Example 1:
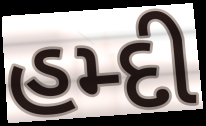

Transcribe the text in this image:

હમ્દી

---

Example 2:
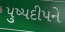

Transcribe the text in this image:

પુષ્પદીપને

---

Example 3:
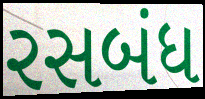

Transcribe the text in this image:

રસબંધ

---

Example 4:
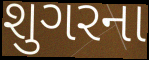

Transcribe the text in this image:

શુગરના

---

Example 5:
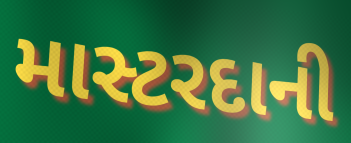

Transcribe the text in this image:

માસ્ટરદાની